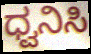
ಧ್ವನಿಸಿ